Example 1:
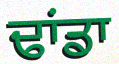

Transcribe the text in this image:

ਢਾਂਡਾ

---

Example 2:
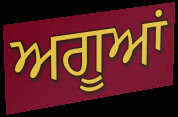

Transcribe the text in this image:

ਅਗੂਆਂ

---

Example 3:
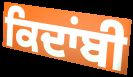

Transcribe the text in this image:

ਕਿਦਾਂਬੀ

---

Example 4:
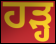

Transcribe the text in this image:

ਹੜ੍ਹ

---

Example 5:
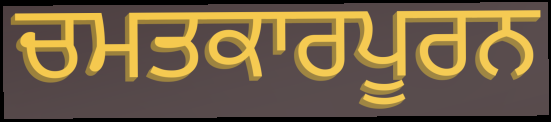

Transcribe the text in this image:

ਚਮਤਕਾਰਪੂਰਨ